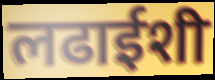
लढाईशी